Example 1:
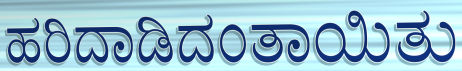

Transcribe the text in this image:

ಹರಿದಾಡಿದಂತಾಯಿತು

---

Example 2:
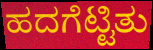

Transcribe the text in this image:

ಹದಗೆಟ್ಟಿತು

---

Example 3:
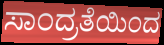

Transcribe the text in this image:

ಸಾಂದ್ರತೆಯಿಂದ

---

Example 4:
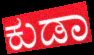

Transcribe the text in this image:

ಕುಡಾ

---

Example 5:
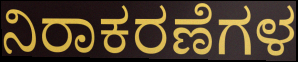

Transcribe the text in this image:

ನಿರಾಕರಣೆಗಳ